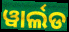
ୱାର୍ଲଡ